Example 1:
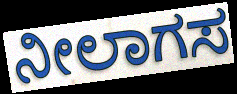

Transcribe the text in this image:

ನೀಲಾಗಸ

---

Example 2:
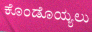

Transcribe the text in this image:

ಕೊಂಡೊಯ್ಯಲು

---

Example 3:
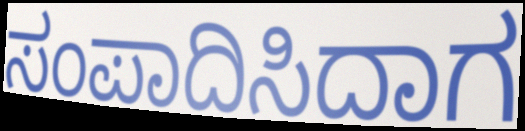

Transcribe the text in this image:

ಸಂಪಾದಿಸಿದಾಗ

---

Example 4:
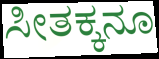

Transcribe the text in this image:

ಸೀತಕ್ಕನೂ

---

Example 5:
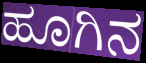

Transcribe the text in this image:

ಹೂಗಿನ